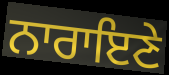
ਨਾਰਾਇਣੇ